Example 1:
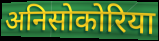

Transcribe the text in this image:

अनिसोकोरिया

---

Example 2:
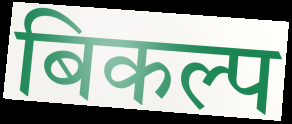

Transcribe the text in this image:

बिकल्प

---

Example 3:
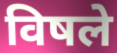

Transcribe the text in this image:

विषले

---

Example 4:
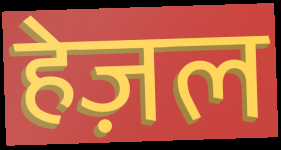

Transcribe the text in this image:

हेज़ल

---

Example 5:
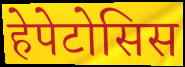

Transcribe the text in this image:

हेपेटोसिस